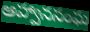
ఆహ్వానసంఘ